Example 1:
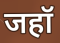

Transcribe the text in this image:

जहॉ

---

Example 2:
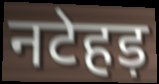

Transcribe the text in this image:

नटेहड़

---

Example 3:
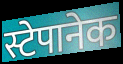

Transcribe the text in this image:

स्टेपानेक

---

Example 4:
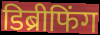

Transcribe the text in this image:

डिब्रीफिंग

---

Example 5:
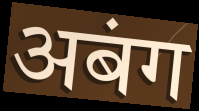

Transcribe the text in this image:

अबंग